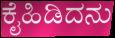
ಕೈಹಿಡಿದನು